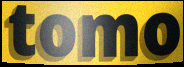
tomo